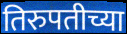
तिरुपतीच्या